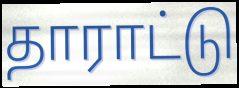
தாராட்டு